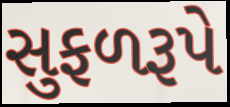
સુફળરૂપે